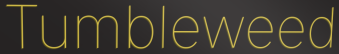
Tumbleweed